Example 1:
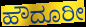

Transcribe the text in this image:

ಹೌದೂರೀ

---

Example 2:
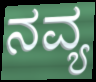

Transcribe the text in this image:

ನವ್ಯ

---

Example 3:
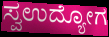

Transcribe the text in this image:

ಸ್ವಉದ್ಯೋಗ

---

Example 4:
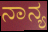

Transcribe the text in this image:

ನಾನ್ಯ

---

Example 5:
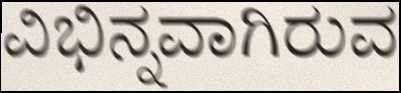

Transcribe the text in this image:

ವಿಭಿನ್ನವಾಗಿರುವ